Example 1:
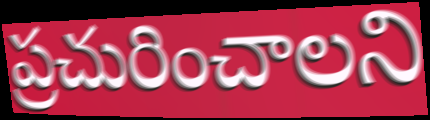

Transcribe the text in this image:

ప్రచురించాలని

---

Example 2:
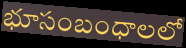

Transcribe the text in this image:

భూసంబంధాలలో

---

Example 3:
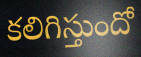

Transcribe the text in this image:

కలిగిస్తుందో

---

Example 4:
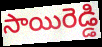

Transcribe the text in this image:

సాయిరెడ్డి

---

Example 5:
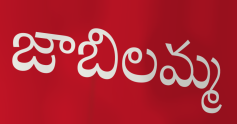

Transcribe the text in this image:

జాబిలమ్మ